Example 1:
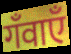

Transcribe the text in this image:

गँवाएँ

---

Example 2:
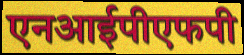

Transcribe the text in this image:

एनआईपीएफपी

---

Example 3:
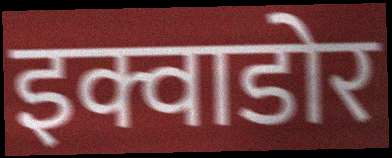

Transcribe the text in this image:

इक्वाडोर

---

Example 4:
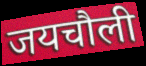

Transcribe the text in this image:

जयचौली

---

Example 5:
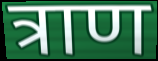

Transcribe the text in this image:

त्राण